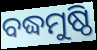
ବଦ୍ଧମୁଷ୍ଠି